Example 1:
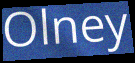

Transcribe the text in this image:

Olney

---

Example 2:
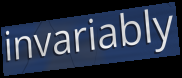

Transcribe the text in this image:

invariably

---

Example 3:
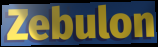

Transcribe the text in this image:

Zebulon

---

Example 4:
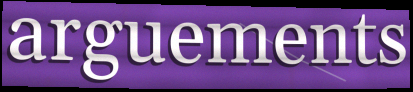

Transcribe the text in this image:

arguements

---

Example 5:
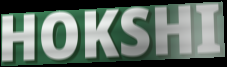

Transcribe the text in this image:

HOKSHI